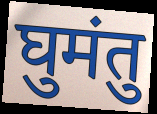
घुमंतु